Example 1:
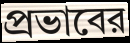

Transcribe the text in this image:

প্রভাবের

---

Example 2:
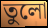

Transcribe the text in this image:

তুলো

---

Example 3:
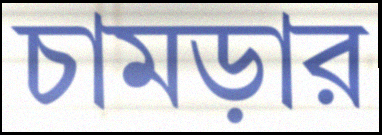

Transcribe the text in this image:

চামড়ার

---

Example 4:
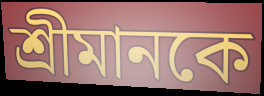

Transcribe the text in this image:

শ্রীমানকে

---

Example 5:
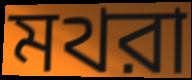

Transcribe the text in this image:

মথরা